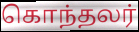
கொந்தலர்